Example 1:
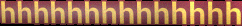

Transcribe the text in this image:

hhhhhhhhhhhhhh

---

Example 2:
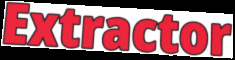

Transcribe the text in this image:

Extractor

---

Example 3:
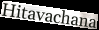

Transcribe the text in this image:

Hitavachana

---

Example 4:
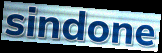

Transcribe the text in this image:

sindone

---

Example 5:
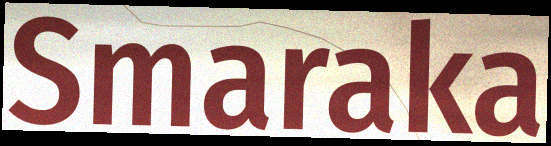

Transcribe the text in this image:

Smaraka